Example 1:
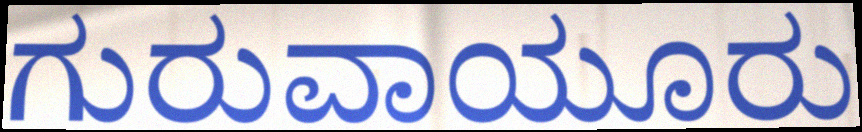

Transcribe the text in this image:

ಗುರುವಾಯೂರು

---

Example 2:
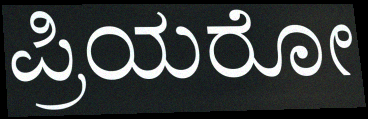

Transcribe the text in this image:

ಪ್ರಿಯರೋ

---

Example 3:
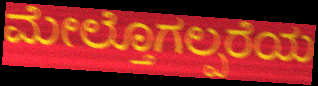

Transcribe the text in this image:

ಮೇಲ್ತೊಗಲ್ಪರೆಯ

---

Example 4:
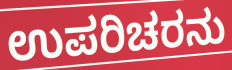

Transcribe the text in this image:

ಉಪರಿಚರನು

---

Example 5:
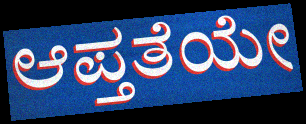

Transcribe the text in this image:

ಆಪ್ತತೆಯೇ